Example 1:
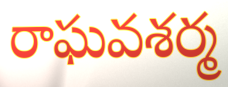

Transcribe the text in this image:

రాఘవశర్మ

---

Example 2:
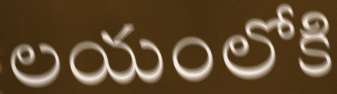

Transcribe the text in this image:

లయంలోకి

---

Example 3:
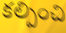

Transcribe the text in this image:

కల్పించి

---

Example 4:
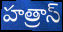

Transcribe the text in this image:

హత్రాస్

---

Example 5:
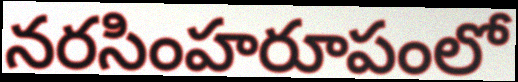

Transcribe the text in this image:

నరసింహరూపంలో